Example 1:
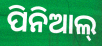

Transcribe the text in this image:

ପିନିଆଲ୍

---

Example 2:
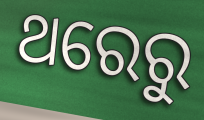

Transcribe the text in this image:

ଥରେରୁ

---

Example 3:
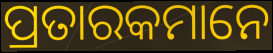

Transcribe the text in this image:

ପ୍ରତାରକମାନେ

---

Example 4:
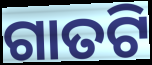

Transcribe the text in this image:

ଗାତଟି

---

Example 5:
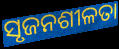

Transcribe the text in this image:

ସୃଜନଶୀଳତା